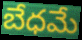
బేధమే